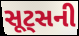
સૂટ્સની